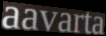
aavarta